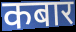
कबार